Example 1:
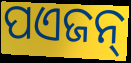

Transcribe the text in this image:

ପଏଜନ୍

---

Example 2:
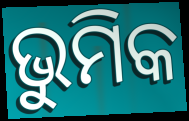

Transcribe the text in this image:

ଭୁମିକ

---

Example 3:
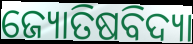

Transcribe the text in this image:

ଜ୍ୟୋତିଷବିଦ୍ୟା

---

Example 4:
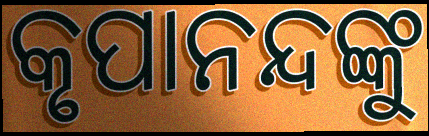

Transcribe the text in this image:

କୃପାନନ୍ଦଙ୍କୁ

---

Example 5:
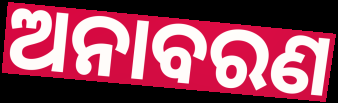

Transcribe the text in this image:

ଅନାବରଣ